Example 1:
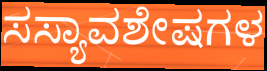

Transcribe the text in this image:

ಸಸ್ಯಾವಶೇಷಗಳ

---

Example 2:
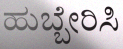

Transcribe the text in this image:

ಹುಬ್ಬೇರಿಸಿ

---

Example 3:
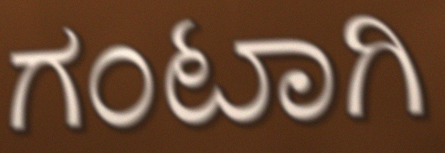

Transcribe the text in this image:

ಗಂಟಾಗಿ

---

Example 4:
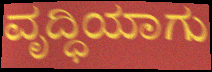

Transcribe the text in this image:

ವೃದ್ಧಿಯಾಗು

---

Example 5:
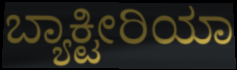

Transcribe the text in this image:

ಬ್ಯಾಕ್ಟೀರಿಯಾ